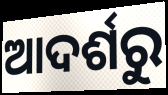
ଆଦର୍ଶରୁ